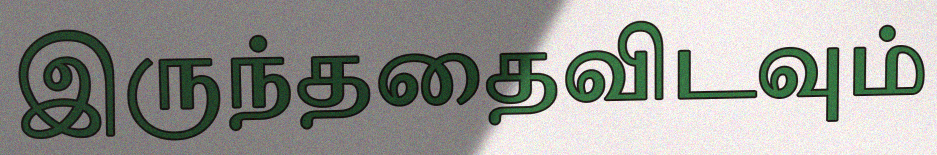
இருந்ததைவிடவும்